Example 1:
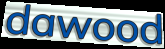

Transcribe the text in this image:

dawood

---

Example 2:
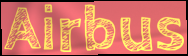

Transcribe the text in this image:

Airbus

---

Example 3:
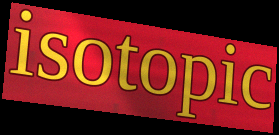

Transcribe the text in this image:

isotopic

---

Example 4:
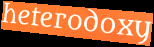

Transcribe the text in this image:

heterodoxy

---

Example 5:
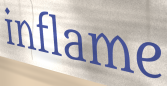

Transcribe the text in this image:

inflame